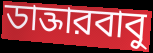
ডাক্তারবাবু